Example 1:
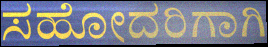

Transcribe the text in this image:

ಸಹೋದರಿಗಾಗಿ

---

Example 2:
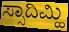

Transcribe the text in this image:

ಸ್ಸಾದಿಮ್ಹಿ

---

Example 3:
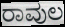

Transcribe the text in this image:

ರಾವುಲ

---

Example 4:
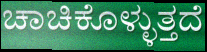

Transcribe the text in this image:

ಚಾಚಿಕೊಳ್ಳುತ್ತದೆ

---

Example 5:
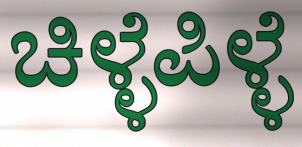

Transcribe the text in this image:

ಚಿಳ್ಳೆಪಿಳ್ಳೆ